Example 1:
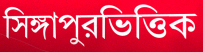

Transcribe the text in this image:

সিঙ্গাপুরভিত্তিক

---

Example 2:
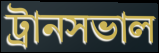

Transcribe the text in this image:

ট্রানসভাল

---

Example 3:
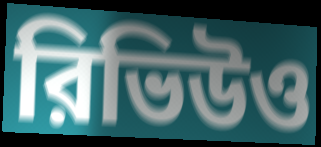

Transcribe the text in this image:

রিভিউও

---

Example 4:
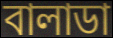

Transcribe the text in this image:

বালাডা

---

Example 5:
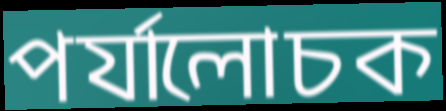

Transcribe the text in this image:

পর্যালোচক